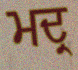
ਮਦ੍ਰ